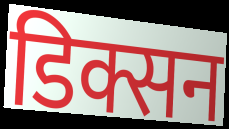
डिक्सन